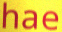
hae